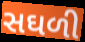
સઘળી